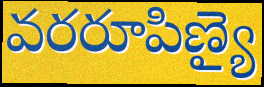
వరరూపిణ్యై